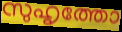
സുഹൃത്തോ